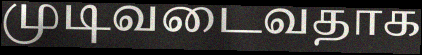
முடிவடைவதாக